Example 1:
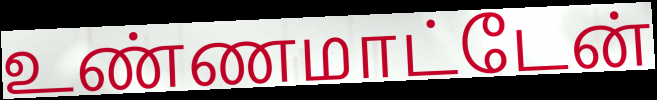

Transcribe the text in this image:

உண்ணமாட்டேன்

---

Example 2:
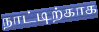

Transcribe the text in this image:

நாட்டிற்காக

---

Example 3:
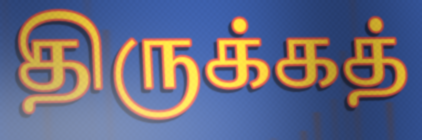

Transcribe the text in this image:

திருக்கத்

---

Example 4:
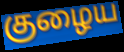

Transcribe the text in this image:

குழைய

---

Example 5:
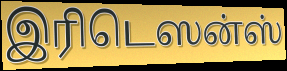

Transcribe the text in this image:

இரிடெஸன்ஸ்